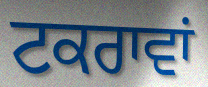
ਟਕਰਾਵਾਂ